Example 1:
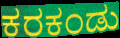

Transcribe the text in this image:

ಕರಕಂಡು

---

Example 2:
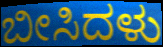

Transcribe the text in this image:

ಬೀಸಿದಳು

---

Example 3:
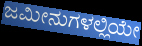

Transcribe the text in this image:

ಜಮೀನುಗಳಲ್ಲಿಯೇ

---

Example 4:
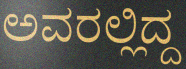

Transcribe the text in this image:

ಅವರಲ್ಲಿದ್ದ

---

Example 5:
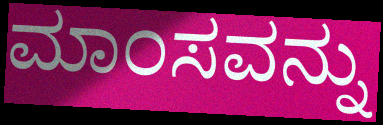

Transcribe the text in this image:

ಮಾಂಸವನ್ನು